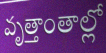
వృత్తాంతాల్లో